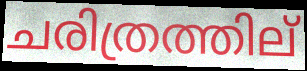
ചരിത്രത്തില്